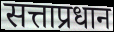
सत्ताप्रधान